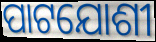
ପାଟଯୋଶୀ